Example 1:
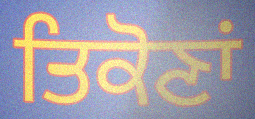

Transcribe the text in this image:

ਤਿਕੋਣਾਂ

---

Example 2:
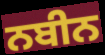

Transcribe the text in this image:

ਨਬੀਨ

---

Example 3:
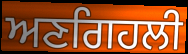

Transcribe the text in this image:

ਅਣਗਿਹਲੀ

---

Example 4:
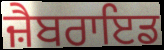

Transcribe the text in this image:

ਜ਼ੈਬਰਾਇਡ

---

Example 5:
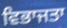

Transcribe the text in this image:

ਵਿਭਾਜਤਾ